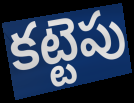
కట్టెపు